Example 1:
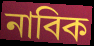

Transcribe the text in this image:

নাবিক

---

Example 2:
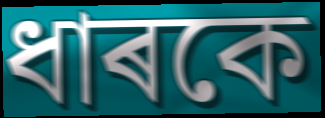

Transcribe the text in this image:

ধাৰকে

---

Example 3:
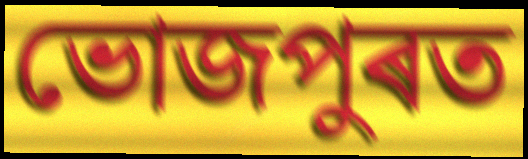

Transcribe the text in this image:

ভোজপুৰত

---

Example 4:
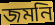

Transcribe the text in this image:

জমনি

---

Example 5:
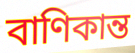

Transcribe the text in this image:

বাণিকান্ত